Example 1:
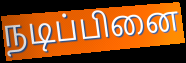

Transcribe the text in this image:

நடிப்பினை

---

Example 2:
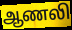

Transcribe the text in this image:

ஆணலி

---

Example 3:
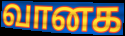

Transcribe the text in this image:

வானக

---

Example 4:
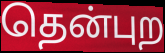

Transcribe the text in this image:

தென்புற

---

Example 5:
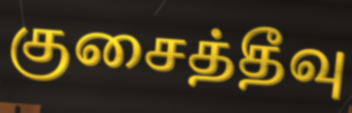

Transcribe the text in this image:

குசைத்தீவு